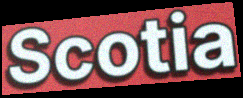
Scotia